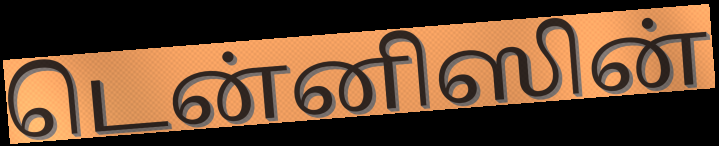
டென்னிஸின்